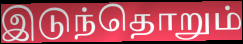
இடுந்தொறும்